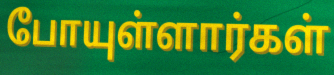
போயுள்ளார்கள்